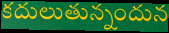
కదులుతున్నందున